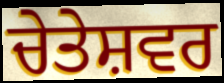
ਚੇਤੇਸ਼ਵਰ